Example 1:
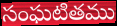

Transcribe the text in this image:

సంఘటితము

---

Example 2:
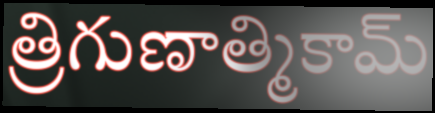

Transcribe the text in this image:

త్రిగుణాత్మికామ్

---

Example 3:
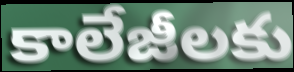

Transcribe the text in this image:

కాలేజీలకు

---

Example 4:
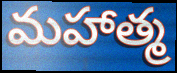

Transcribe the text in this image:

మహాత్మ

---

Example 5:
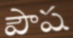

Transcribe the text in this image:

పౌష